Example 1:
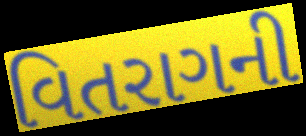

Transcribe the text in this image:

વિતરાગની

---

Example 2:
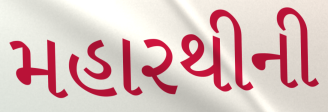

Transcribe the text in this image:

મહારથીની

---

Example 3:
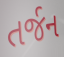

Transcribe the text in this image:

તર્જન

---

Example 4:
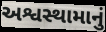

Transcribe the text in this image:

અશ્વસ્થામાનું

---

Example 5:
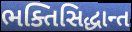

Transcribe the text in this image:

ભક્તિસિદ્ધાન્ત